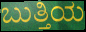
ಬುತ್ತಿಯ